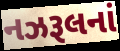
નઝરૂલનાં